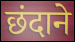
छंदाने